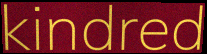
kindred